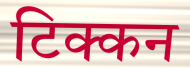
टिक्कन